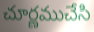
చూర్ణముచేసి